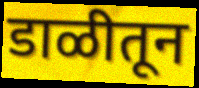
डाळीतून